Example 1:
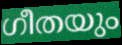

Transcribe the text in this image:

ഗീതയും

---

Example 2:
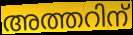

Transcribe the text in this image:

അത്തറിന്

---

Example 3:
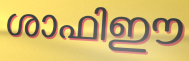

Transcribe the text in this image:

ശാഫിഈ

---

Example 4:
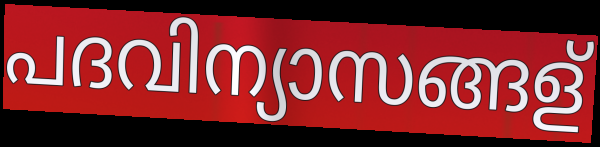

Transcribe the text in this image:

പദവിന്യാസങ്ങള്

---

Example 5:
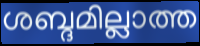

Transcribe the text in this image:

ശബ്ദമില്ലാത്ത